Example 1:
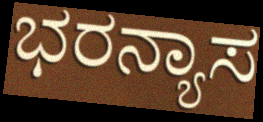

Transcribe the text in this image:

ಭರನ್ಯಾಸ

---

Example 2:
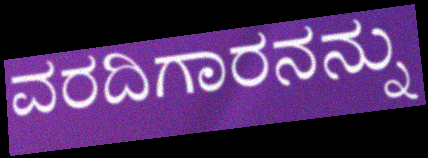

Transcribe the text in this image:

ವರದಿಗಾರನನ್ನು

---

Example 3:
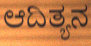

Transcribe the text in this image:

ಆದಿತ್ಯನ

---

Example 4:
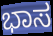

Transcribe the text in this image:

ಭಾಸ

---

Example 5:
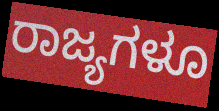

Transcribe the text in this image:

ರಾಜ್ಯಗಳೂ